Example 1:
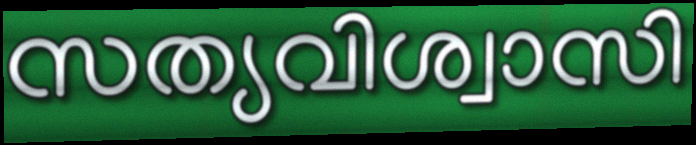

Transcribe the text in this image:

സത്യവിശ്വാസി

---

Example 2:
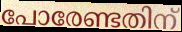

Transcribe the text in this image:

പോരേണ്ടതിന്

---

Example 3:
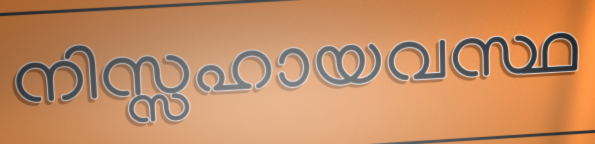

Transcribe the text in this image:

നിസ്സഹായവസ്ഥ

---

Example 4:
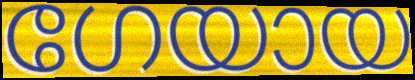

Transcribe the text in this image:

ഗേയായ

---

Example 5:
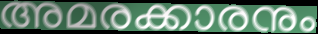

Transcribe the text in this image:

അമരക്കാരനും